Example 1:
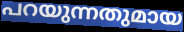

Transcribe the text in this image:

പറയുന്നതുമായ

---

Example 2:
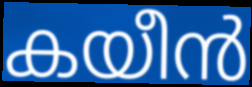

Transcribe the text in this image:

കയീൻ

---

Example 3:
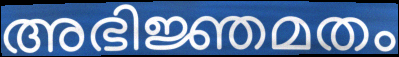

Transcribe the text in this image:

അഭിജ്ഞമതം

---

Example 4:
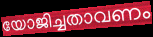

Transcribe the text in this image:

യോജിച്ചതാവണം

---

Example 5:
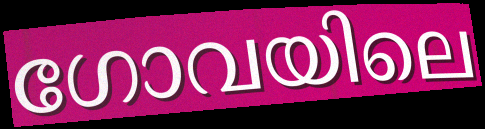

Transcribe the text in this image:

ഗോവയിലെ